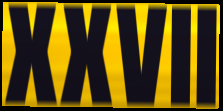
XXVII